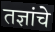
तज्ञांचे